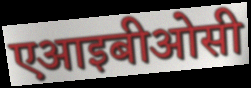
एआइबीओसी